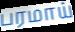
பரமாய்